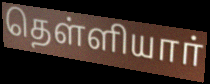
தெள்ளியார்